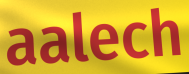
aalech